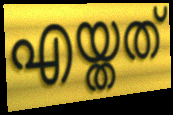
എയ്തത്